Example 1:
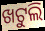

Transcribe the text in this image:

ଖଟୁଲି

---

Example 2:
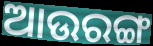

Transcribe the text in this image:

ଆଉରଙ୍ଗ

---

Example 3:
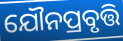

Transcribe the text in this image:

ଯୌନପ୍ରବୃତ୍ତି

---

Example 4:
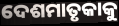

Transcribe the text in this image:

ଦେଶମାତୃକାକୁ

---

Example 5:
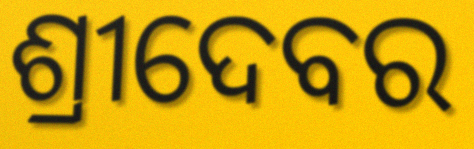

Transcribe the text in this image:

ଶ୍ରୀଦେବର